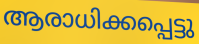
ആരാധിക്കപ്പെട്ടു